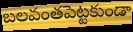
బలవంతపెట్టకుండా